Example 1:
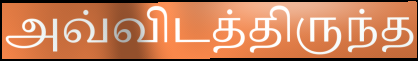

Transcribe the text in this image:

அவ்விடத்திருந்த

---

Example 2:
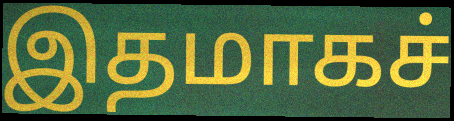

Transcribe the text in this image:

இதமாகச்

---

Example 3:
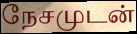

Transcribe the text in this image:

நேசமுடன்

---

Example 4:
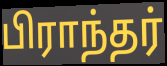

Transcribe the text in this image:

பிராந்தர்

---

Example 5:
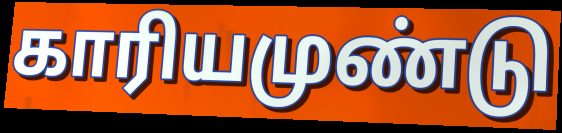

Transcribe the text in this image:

காரியமுண்டு